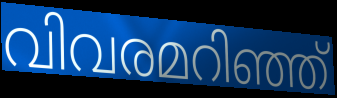
വിവരമറിഞ്ഞ്